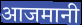
आजमानी